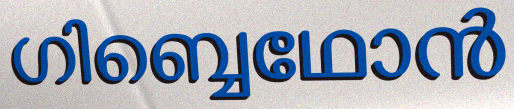
ഗിബ്ബെഥോൻ